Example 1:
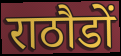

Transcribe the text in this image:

राठौडों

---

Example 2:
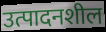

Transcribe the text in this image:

उत्पादनशील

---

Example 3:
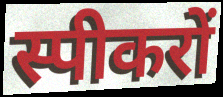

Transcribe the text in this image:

स्पीकरों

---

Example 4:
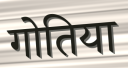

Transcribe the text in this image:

गोतिया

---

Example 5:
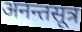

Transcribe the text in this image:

अनन्तसूत्र